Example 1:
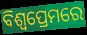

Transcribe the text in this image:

ବିଶ୍ୱପ୍ରେମରେ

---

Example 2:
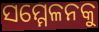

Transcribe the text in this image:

ସମ୍ମେଳନକୁ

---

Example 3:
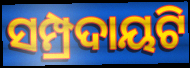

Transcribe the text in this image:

ସମ୍ପ୍ରଦାୟଟି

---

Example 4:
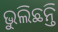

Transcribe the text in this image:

ଭୁଲିଛନ୍ତି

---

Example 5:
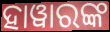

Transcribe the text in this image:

ହାୱାରଙ୍କ